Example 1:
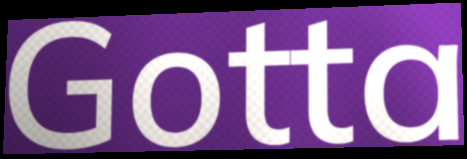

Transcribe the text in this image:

Gotta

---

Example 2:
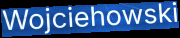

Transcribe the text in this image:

Wojciehowski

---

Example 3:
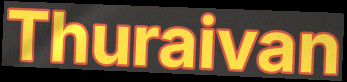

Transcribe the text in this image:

Thuraivan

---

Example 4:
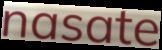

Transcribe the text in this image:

nasate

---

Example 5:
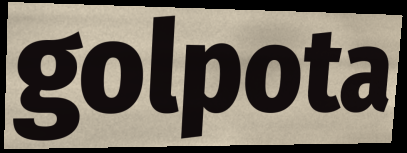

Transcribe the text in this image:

golpota